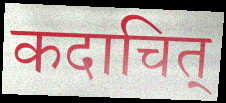
कदाचित्